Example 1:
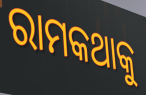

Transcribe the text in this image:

ରାମକଥାକୁ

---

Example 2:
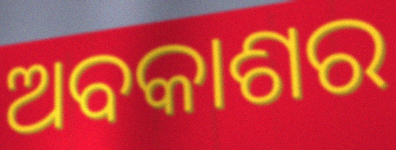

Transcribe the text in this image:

ଅବକାଶର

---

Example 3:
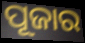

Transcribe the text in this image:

ପୂଜାର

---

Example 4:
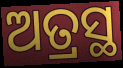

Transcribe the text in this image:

ଅତ୍ରସ୍ଥ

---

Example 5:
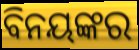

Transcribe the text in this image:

ବିନୟଙ୍କର